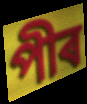
পীৰ